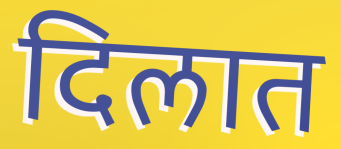
दिलात